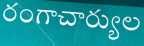
రంగాచార్యుల